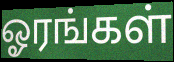
ஓரங்கள்